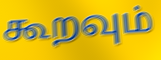
கூறவும்